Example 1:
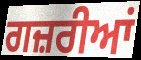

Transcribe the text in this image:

ਗਜ਼ਰੀਆਂ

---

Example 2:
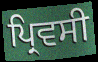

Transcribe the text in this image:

ਪ੍ਰਿਵਸੀ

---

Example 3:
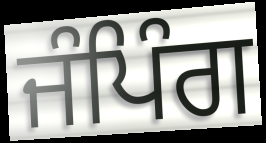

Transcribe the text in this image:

ਜੰਪਿੰਗ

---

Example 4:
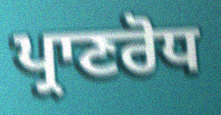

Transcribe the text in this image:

ਪ੍ਰਾਣਰੋਧ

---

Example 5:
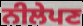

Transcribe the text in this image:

ਨੀਲੇਪਣ